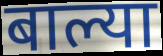
बाल्या